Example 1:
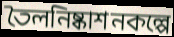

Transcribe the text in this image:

তৈলনিষ্কাশনকল্পে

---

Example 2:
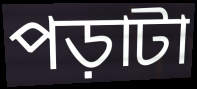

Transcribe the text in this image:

পড়াটা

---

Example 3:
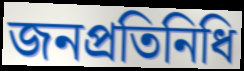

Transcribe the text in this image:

জনপ্রতিনিধি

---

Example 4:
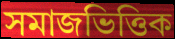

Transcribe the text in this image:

সমাজভিত্তিক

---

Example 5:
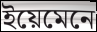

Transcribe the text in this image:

ইয়েমেনে